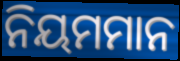
ନିୟମମାନ